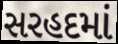
સરહદમાં